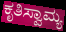
ಕೃತಿಸ್ವಾಮ್ಯ